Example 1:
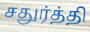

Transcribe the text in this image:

சதுர்த்தி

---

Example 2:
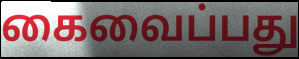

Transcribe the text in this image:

கைவைப்பது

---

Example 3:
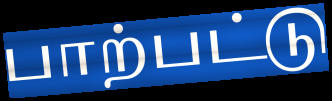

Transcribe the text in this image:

பாற்பட்டு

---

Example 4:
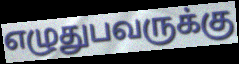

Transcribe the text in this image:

எழுதுபவருக்கு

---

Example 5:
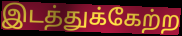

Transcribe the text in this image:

இடத்துக்கேற்ற